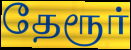
தேரூர்